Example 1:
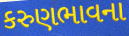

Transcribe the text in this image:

કરુણભાવના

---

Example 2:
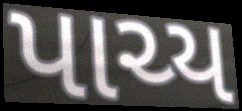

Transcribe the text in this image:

પાચ્ય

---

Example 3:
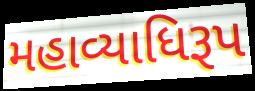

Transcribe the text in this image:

મહાવ્યાધિરૂપ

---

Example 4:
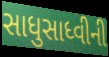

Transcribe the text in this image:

સાધુસાધ્વીની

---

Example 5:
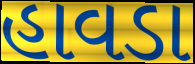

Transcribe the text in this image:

હાવડા